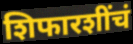
शिफारशींचं